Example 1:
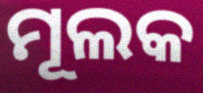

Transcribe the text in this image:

ମୂଲକ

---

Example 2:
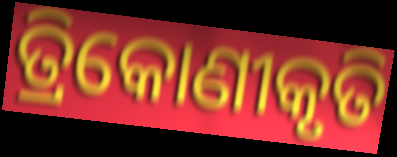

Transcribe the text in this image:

ତ୍ରିକୋଣୀକୃତି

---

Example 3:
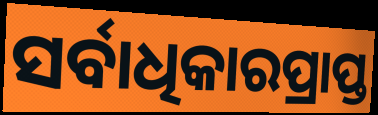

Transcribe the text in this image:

ସର୍ବାଧିକାରପ୍ରାପ୍ତ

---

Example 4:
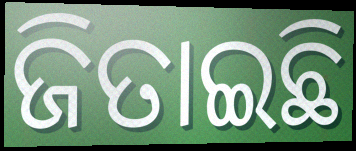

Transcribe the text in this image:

ଜିତାଇଛି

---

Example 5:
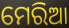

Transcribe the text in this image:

ମେରିଆ